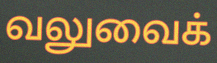
வலுவைக்